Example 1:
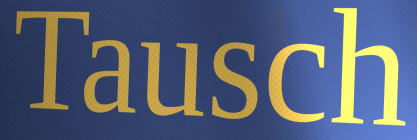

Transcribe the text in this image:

Tausch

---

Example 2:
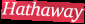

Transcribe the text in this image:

Hathaway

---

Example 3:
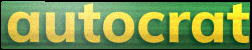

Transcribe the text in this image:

autocrat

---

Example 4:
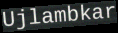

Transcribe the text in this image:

Ujlambkar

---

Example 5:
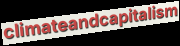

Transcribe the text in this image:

climateandcapitalism